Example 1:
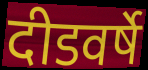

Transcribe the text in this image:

दीडवर्षे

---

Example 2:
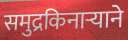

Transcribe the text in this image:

समुद्रकिनाऱ्याने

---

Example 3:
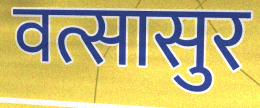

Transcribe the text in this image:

वत्सासुर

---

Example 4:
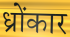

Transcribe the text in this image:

ध्रोंकार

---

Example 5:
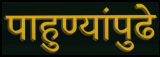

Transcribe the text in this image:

पाहुण्यांपुढे